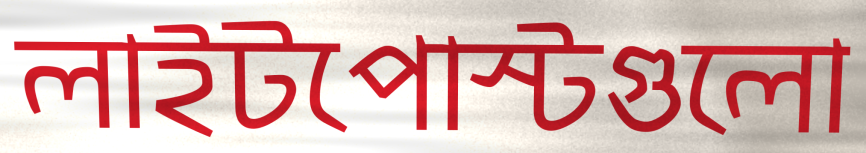
লাইটপোস্টগুলো